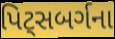
પિટ્સબર્ગના